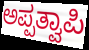
ಅಪ್ಪತ್ವಾಪಿ